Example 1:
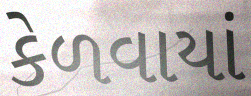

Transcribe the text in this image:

કેળવાયાં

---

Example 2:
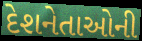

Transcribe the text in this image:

દેશનેતાઓની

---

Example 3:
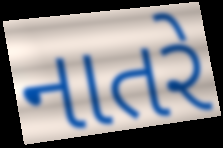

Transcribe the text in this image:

નાતરે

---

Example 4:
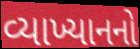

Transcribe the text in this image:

વ્યાખ્યાનનો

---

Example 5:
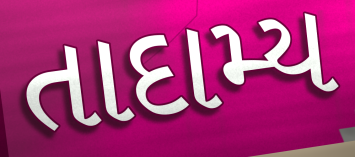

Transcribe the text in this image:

તાદામ્ય